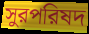
সুরপরিষদ